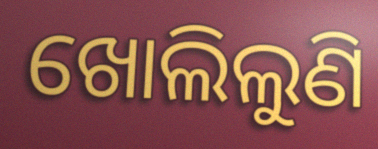
ଖୋଲିଲୁଣି